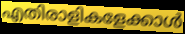
എതിരാളികളേക്കാൾ